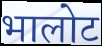
भालोट